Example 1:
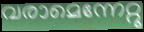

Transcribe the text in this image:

വരാമെന്നേറ്റു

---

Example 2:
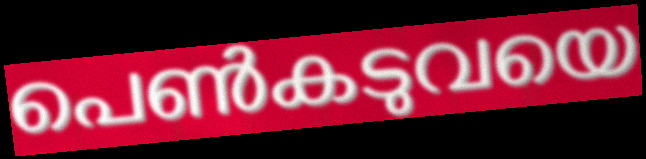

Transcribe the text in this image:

പെൺകടുവയെ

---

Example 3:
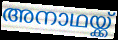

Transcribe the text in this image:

അനാഥയ്ക്ക്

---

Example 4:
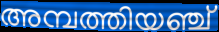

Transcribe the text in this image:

അമ്പത്തിയഞ്ച്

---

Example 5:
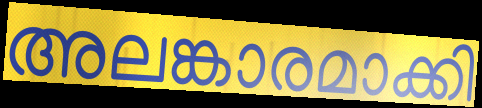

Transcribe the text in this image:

അലങ്കാരമാക്കി